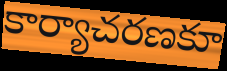
కార్యాచరణకూ